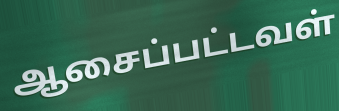
ஆசைப்பட்டவள்